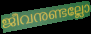
ജീവനുണ്ടല്ലോ